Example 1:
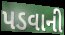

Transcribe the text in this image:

પડવાની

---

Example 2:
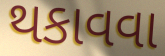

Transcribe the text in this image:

થકાવવા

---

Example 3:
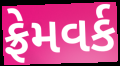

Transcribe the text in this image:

ફ્રેમવર્ક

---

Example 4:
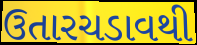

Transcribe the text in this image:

ઉતારચડાવથી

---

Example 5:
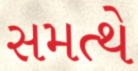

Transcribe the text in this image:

સમત્થે